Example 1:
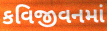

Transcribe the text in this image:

કવિજીવનમાં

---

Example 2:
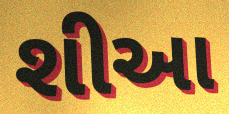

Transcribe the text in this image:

શીઆ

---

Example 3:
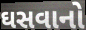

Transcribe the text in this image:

ઘસવાનો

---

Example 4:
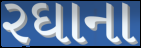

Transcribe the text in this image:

રઘાના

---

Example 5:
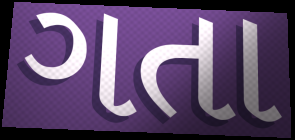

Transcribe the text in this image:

ગતા